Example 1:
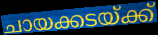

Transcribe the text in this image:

ചായക്കടയ്ക്ക്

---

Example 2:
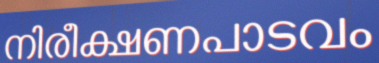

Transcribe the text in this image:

നിരീക്ഷണപാടവം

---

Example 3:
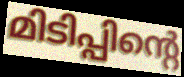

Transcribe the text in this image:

മിടിപ്പിന്റെ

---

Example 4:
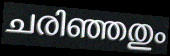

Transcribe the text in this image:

ചരിഞ്ഞതും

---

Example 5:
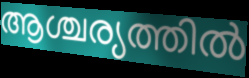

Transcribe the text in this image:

ആശ്ചര്യത്തിൽ